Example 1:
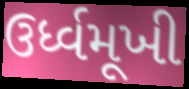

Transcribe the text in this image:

ઉર્ધ્વમૂખી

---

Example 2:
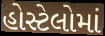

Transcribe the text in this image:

હોસ્ટેલોમાં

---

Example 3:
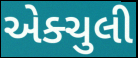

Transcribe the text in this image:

એક્ચુલી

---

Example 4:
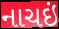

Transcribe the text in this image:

નાચઇં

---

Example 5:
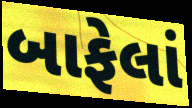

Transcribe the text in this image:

બાફેલાં